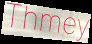
Thmey